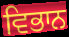
ਵਿਭਾਨ